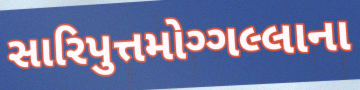
સારિપુત્તમોગ્ગલ્લાના